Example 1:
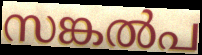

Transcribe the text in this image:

സങ്കൽപ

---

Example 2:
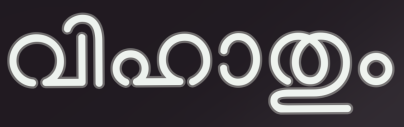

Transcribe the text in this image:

വിഹാതും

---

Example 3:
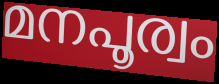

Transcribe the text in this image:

മനപൂര്വം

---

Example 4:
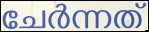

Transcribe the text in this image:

ചേർന്നത്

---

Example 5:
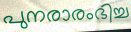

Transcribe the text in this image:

പുനരാരംഭിച്ച